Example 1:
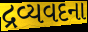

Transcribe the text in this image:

દ્રવ્યવદના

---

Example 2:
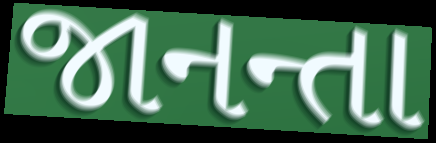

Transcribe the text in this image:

જાનન્તા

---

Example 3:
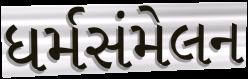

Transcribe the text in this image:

ધર્મસંમેલન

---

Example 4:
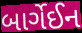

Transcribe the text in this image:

બાર્ગેઈન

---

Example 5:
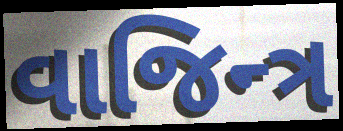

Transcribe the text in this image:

વાજિન્ત્ર